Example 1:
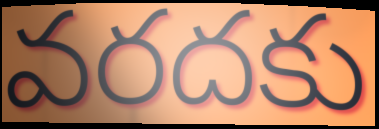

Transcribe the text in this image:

వరదకు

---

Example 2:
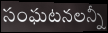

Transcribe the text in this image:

సంఘటనలన్నీ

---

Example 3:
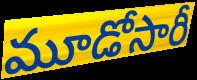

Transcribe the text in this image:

మూడోసారీ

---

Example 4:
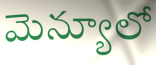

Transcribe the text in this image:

మెన్యూలో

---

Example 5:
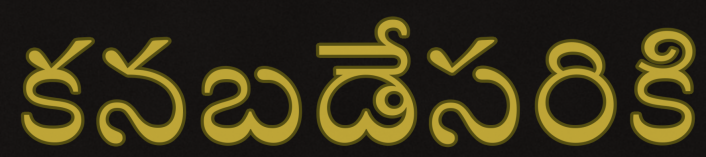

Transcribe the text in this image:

కనబడేసరికి